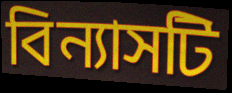
বিন্যাসটি